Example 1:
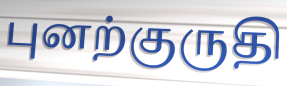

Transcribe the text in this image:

புனற்குருதி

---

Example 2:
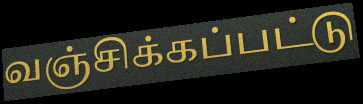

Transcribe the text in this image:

வஞ்சிக்கப்பட்டு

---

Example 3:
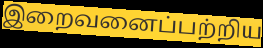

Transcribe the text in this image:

இறைவனைப்பற்றிய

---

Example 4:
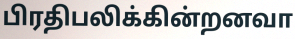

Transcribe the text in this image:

பிரதிபலிக்கின்றனவா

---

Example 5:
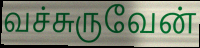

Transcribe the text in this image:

வச்சுருவேன்